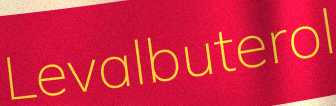
Levalbuterol